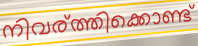
നിവര്ത്തിക്കൊണ്ട്